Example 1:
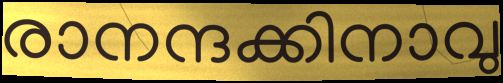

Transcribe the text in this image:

രാനന്ദക്കിനാവു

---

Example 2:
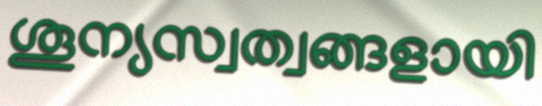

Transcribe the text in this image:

ശൂന്യസ്വത്വങ്ങളായി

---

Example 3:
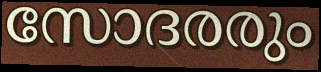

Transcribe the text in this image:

സോദരരും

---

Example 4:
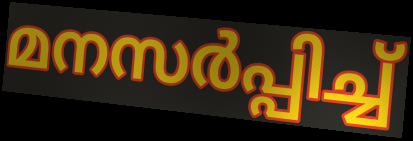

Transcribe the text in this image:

മനസർപ്പിച്ച്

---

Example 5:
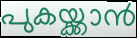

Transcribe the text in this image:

പുകയ്ക്കാൻ